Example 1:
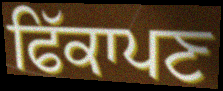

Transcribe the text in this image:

ਫਿੱਕਾਪਣ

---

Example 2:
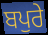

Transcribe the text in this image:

ਬਪੁਰੇ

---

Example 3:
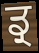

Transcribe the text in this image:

ਡ੍ਰ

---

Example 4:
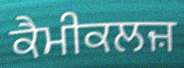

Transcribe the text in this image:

ਕੈਮੀਕਲਜ਼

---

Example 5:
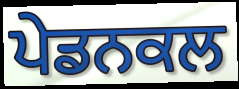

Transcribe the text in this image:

ਪੇਡਨਕਲ